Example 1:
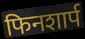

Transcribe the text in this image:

फिनशार्प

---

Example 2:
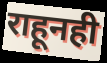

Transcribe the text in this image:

राहूनही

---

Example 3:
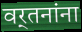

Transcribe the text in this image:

वर्तनांना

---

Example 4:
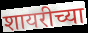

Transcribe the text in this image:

शायरीच्या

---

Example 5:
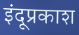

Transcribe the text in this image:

इंदूप्रकाश